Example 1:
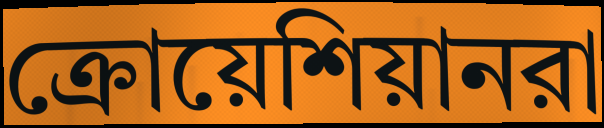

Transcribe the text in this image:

ক্রোয়েশিয়ানরা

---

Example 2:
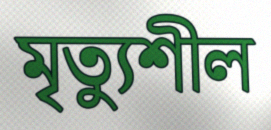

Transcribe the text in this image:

মৃত্যুশীল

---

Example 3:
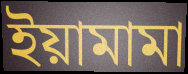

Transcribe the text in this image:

ইয়ামামা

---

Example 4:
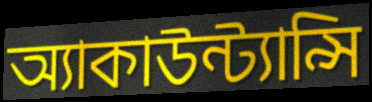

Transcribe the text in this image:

অ্যাকাউন্ট্যান্সি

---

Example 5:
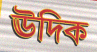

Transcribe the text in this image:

ঊদিক